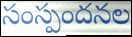
సంస్పందనల